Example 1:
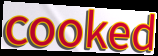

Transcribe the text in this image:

cooked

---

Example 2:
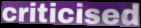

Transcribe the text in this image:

criticised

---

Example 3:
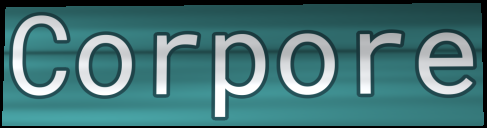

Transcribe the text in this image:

Corpore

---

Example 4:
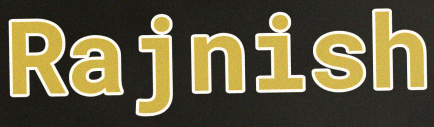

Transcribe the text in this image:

Rajnish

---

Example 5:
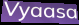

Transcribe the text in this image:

Vyaasa